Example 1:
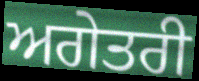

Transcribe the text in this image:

ਅਗੇਤਰੀ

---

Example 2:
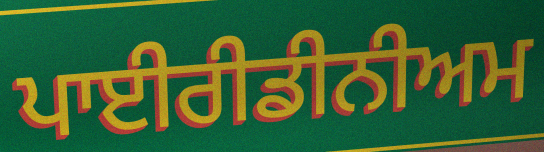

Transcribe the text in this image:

ਪਾਈਰੀਡੀਨੀਅਮ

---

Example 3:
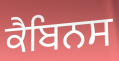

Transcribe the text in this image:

ਕੈਬਿਨਸ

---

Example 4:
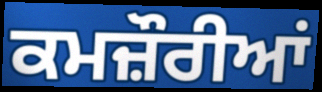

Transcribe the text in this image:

ਕਮਜ਼ੌਰੀਆਂ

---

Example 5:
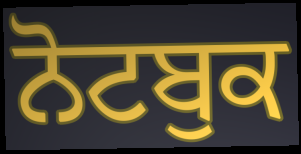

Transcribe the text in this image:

ਨੋਟਬੁਕ